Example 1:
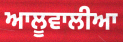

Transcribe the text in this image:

ਆਲੂਵਾਲੀਆ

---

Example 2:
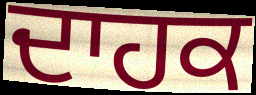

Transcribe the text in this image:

ਦਾਹਕ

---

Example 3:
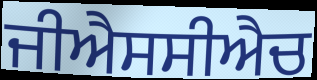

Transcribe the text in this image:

ਜੀਐਸਸੀਐਚ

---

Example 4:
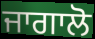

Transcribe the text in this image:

ਜਾਗਾਲੋ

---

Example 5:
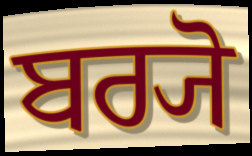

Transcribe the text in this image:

ਬਰ੍ਯੋ